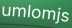
umlomjs